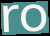
ro